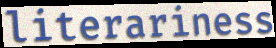
literariness